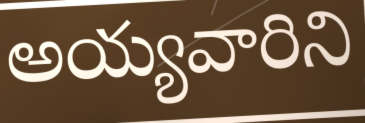
అయ్యవారిని